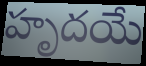
హృదయే